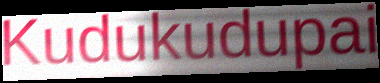
Kudukudupai